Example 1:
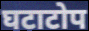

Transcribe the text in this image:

घटाटोप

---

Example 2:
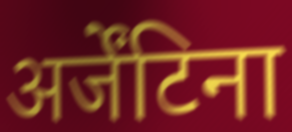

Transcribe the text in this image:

अर्जेंटिना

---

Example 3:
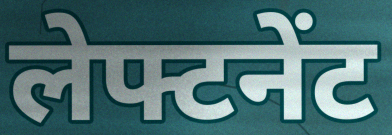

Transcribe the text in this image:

लेफ्टनेंट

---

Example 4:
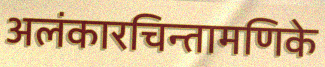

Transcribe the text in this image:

अलंकारचिन्तामणिके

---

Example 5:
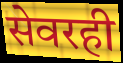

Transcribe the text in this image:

सेवरही